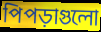
পিপড়াগুলো